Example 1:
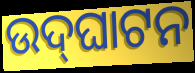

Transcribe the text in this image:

ଉଦ୍‍ଘାଟନ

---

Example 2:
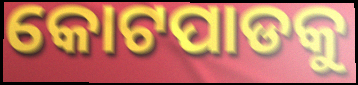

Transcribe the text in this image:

କୋଟପାଡକୁ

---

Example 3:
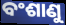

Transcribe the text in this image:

ବଂଶାଣୁ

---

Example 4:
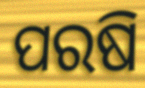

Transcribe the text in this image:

ପରଷି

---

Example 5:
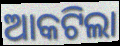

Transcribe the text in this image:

ଆକଟିଲା